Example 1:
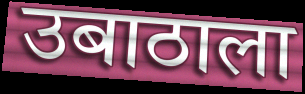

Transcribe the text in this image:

उबाठाला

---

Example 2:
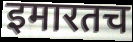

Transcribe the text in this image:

इमारतच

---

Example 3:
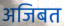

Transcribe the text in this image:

अजिबत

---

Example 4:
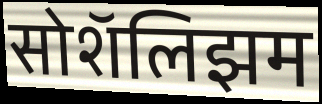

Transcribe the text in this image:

सोशॅलिझम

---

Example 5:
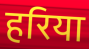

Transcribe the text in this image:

हरिया